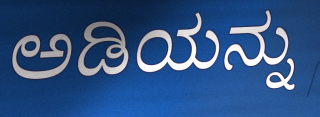
ಅಡಿಯನ್ನು